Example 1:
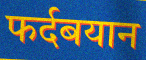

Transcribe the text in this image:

फर्दबयान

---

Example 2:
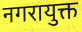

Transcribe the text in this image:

नगरायुक्त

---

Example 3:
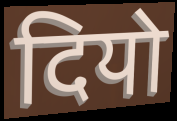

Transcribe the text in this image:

दियो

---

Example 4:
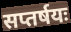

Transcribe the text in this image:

सप्तर्षयः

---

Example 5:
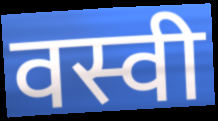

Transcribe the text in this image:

वस्वी